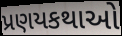
પ્રણયકથાઓ